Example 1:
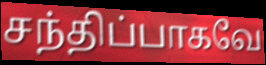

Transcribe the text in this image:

சந்திப்பாகவே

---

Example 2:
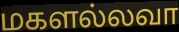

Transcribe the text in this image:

மகளல்லவா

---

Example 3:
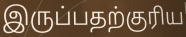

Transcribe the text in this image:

இருப்பதற்குரிய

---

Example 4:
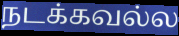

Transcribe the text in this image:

நடக்கவல்ல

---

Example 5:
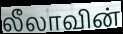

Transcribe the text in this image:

லீலாவின்